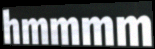
hmmmm